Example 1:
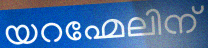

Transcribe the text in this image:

യറഹ്മേലിന്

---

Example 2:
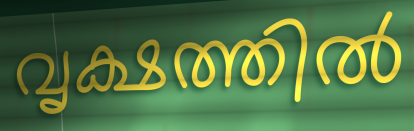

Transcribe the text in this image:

വൃക്ഷത്തിൽ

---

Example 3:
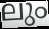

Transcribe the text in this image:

ലും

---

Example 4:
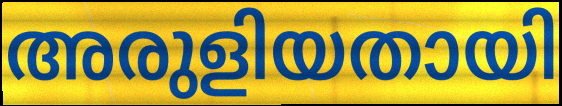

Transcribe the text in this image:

അരുളിയതായി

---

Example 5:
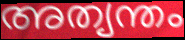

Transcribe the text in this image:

അത്യന്തം